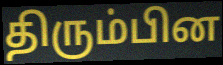
திரும்பின